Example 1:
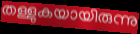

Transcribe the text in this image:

തള്ളുകയായിരുന്നു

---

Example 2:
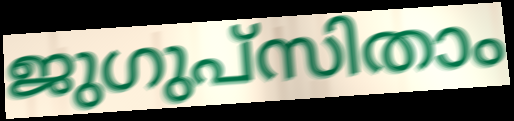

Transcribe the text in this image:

ജുഗുപ്സിതാം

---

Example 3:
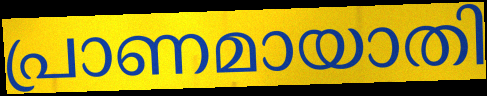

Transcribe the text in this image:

പ്രാണമായാതി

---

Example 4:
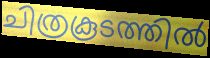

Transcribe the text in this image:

ചിത്രകൂടത്തിൽ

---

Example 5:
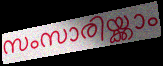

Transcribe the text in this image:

സംസാരിയ്ക്കാം